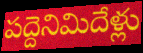
పద్దెనిమిదేళ్లు